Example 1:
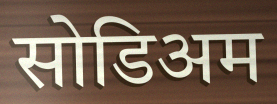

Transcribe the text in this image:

सोडिअम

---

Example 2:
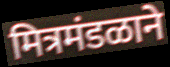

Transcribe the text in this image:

मित्रमंडळाने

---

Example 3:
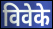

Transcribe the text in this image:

विवेके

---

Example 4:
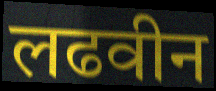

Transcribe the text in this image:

लढवीन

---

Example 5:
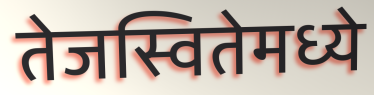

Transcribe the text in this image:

तेजस्वितेमध्ये